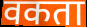
वकता